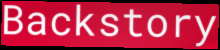
Backstory